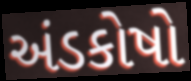
અંડકોષો